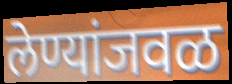
लेण्यांजवळ